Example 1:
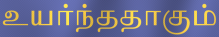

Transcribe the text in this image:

உயர்ந்ததாகும்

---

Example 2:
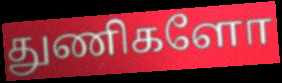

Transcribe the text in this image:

துணிகளோ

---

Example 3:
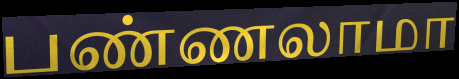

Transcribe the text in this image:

பண்ணலாமா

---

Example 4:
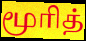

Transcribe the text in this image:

மூரித்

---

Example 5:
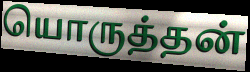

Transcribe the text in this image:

யொருத்தன்